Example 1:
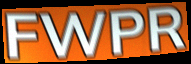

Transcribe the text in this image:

FWPR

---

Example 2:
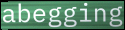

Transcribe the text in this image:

abegging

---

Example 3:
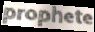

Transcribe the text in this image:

prophete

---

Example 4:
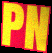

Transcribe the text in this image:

PN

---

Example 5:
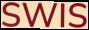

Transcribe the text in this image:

SWIS